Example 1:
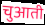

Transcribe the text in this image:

चुआती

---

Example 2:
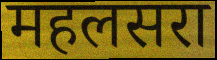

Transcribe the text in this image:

महलसरा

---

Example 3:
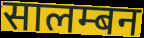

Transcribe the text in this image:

सालम्बन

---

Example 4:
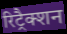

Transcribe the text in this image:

रिट्रैक्शन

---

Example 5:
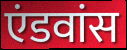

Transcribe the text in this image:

एंडवांस